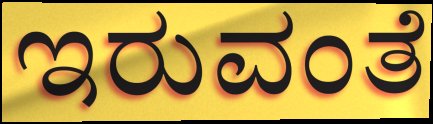
ಇರುವಂತೆ